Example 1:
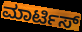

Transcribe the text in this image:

ಮಾರ್ಟಿಸ್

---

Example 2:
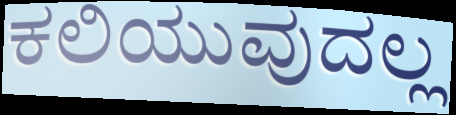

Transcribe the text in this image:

ಕಲಿಯುವುದಲ್ಲ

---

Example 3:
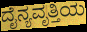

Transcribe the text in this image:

ದೈನ್ಯವೃತ್ತಿಯ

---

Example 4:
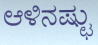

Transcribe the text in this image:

ಆಳಿನಷ್ಟು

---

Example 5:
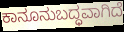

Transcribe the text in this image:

ಕಾನೂನುಬದ್ಧವಾಗಿದೆ